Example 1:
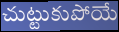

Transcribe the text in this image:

చుట్టుకుపోయే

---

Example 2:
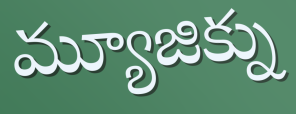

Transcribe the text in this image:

మ్యూజిక్ను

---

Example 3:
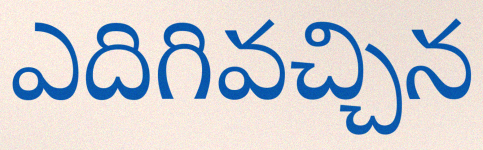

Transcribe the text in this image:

ఎదిగివచ్చిన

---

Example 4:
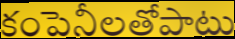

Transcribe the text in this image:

కంపెనీలతోపాటు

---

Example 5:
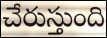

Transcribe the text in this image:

చేరుస్తుంది